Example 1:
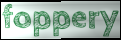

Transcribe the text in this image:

foppery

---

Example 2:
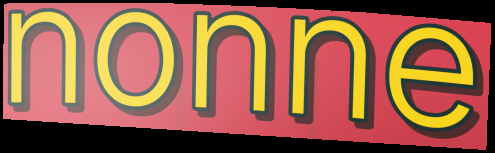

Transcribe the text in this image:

nonne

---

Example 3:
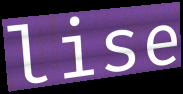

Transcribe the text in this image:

lise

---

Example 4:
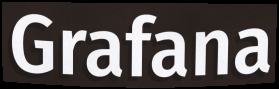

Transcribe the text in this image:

Grafana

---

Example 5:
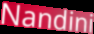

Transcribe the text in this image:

Nandini